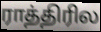
ராத்திரில